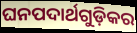
ଘନପଦାର୍ଥଗୁଡ଼ିକର